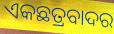
ଏକଛତ୍ରବାଦର